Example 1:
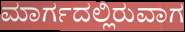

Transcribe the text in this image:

ಮಾರ್ಗದಲ್ಲಿರುವಾಗ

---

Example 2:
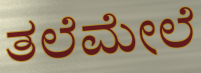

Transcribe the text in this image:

ತಲೆಮೇಲೆ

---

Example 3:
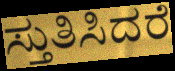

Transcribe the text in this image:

ಸ್ತುತಿಸಿದರೆ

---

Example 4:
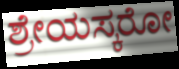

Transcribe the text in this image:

ಶ್ರೇಯಸ್ಕರೋ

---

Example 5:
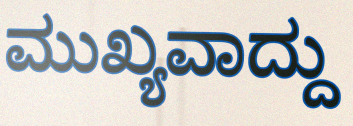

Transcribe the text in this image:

ಮುಖ್ಯವಾದ್ದು